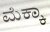
ಮೆಕ್ಕಾ